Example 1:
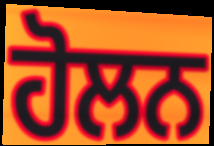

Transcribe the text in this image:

ਹੋਲਨ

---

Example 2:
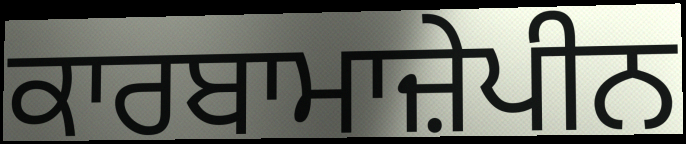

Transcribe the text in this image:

ਕਾਰਬਾਮਾਜ਼ੇਪੀਨ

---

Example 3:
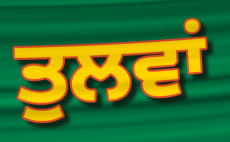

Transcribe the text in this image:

ਤੁਲਵਾਂ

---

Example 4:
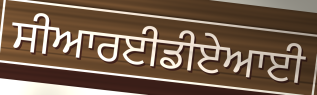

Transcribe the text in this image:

ਸੀਆਰਈਡੀਏਆਈ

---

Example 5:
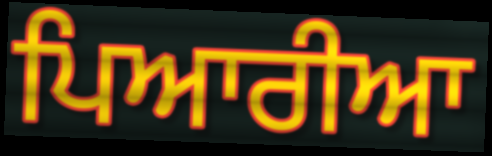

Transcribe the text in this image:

ਪਿਆਰੀਆ